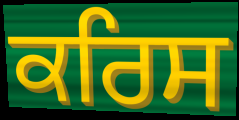
ਕਰਿਸ